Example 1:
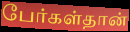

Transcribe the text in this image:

பேர்கள்தான்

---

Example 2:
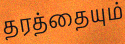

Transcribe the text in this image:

தரத்தையும்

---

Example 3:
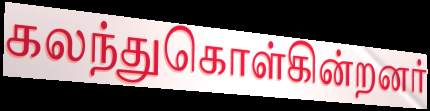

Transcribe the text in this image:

கலந்துகொள்கின்றனர்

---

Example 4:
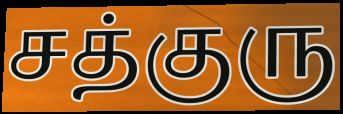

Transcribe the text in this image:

சத்குரு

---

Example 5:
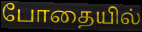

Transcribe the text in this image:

போதையில்